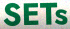
SETs